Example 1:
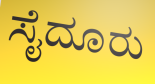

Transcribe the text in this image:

ಸೈದೂರು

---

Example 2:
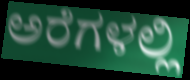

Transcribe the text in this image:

ಅರೆಗಳಲ್ಲಿ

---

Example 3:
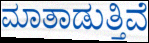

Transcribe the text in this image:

ಮಾತಾಡುತ್ತಿವೆ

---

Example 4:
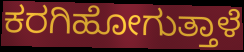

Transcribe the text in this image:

ಕರಗಿಹೋಗುತ್ತಾಳೆ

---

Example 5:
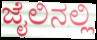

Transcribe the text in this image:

ಜೈಲಿನಲ್ಲಿ